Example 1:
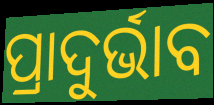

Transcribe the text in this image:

ପ୍ରାଦୁର୍ଭାବ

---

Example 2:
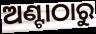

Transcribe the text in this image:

ଅଣ୍ଟାଠାରୁ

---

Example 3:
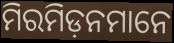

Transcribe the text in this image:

ମିରମିଡ଼ନମାନେ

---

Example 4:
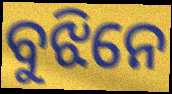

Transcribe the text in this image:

ବୁଝିନେ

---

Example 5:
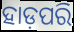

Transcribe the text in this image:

ହାଡ଼ପରି